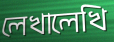
লেখালেখি